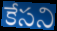
కేసని